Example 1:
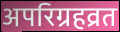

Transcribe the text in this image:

अपरिग्रहव्रत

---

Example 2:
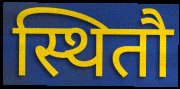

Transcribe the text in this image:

स्थितौ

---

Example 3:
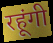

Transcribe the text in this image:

रहूंगी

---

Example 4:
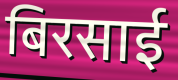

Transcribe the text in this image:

बिरसाई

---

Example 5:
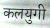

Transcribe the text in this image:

कलयुगी